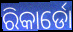
ରିକାର୍ଡୋ